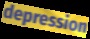
depression